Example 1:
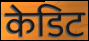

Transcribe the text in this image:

केडिट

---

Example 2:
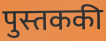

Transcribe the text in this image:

पुस्तककी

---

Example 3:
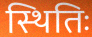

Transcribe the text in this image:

स्थितिः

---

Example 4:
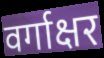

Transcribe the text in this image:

वर्गाक्षर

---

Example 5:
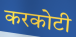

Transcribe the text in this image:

करकोटी